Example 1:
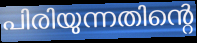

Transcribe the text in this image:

പിരിയുന്നതിന്റെ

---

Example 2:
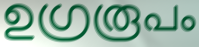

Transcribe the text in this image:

ഉഗ്രരൂപം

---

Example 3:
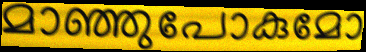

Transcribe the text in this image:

മാഞ്ഞുപോകുമോ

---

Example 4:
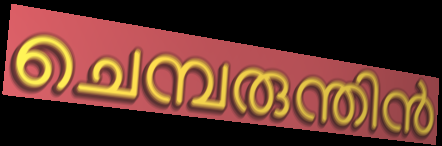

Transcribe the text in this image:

ചെമ്പരുന്തിൻ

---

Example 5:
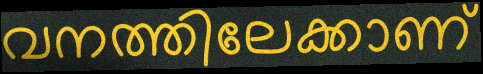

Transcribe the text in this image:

വനത്തിലേക്കാണ്